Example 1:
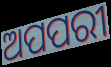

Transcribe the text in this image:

ଅପପରୀ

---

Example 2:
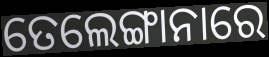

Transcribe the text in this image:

ତେଲେଙ୍ଗାନାରେ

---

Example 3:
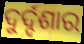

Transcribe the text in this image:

ଦୁର୍ଦ୍ଦଶାର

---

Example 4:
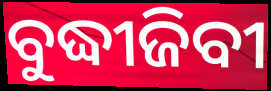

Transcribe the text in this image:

ବୁଦ୍ଧୀଜିବୀ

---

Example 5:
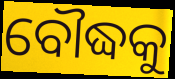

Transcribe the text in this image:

ବୌଦ୍ଧକୁ